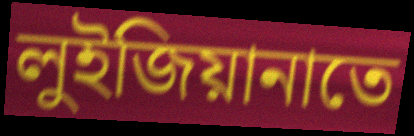
লুইজিয়ানাতে